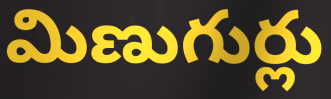
మిణుగుర్లు